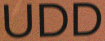
UDD